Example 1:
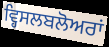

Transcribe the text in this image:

ਵ੍ਹਿਸਲਬਲੋਅਰਾਂ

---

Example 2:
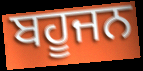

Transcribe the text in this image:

ਬਹੂਜਨ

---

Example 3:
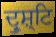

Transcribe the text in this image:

ਦ੍ਰੁਸ਼੍ਟਿ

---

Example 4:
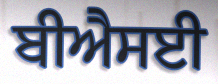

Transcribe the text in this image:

ਬੀਐਸਈ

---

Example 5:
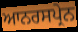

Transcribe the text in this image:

ਆਨਰਸਪ੍ਰੇਨ